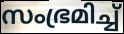
സംഭ്രമിച്ച്